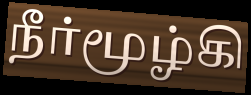
நீர்மூழ்கி